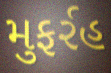
મુફર્રહ